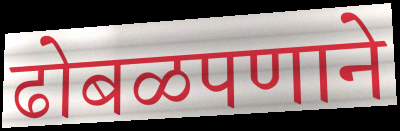
ढोबळपणाने